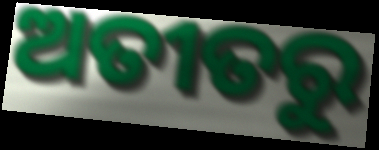
ଅତୀତରୁ